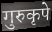
गुरुकृपे